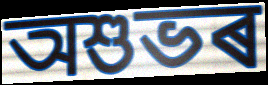
অশুভৰ